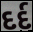
દર્દ